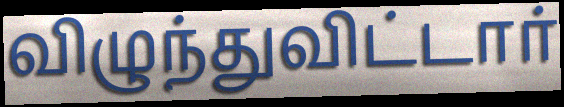
விழுந்துவிட்டார்